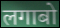
लगाबो